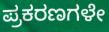
ಪ್ರಕರಣಗಳೇ